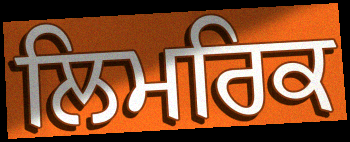
ਲਿਮਰਿਕ